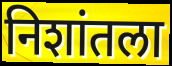
निशांतला